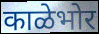
काळेभोर